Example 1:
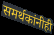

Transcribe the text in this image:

समर्थकांनीही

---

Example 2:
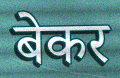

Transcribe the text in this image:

बेकर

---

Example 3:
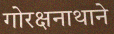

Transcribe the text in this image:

गोरक्षनाथाने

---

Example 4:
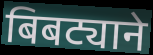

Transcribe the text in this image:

बिबट्याने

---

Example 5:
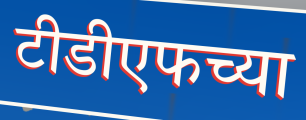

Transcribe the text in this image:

टीडीएफच्या